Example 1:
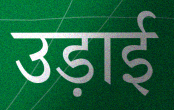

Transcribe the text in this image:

उड़ाई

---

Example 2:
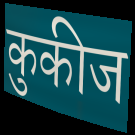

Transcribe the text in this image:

कुकीज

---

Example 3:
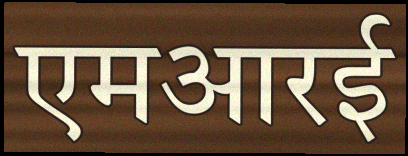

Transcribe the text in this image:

एमआरई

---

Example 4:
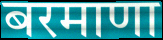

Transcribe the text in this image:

बरमाणा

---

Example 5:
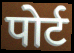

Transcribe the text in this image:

पोर्ट